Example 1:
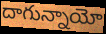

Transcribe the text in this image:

దాగున్నాయో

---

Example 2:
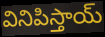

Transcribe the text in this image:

వినిపిస్తాయ్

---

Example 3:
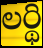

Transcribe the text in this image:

లర్థి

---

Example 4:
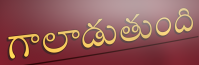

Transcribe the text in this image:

గాలాడుతుంది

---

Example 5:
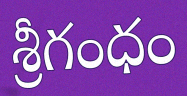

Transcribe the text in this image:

శ్రీగంధం